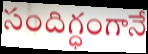
సందిగ్ధంగానే